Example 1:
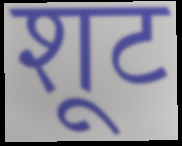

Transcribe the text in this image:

शूट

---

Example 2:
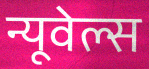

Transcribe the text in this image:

न्यूवेल्स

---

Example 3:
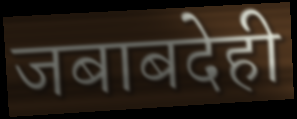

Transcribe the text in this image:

जबाबदेही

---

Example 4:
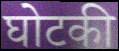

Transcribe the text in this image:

घोटकी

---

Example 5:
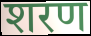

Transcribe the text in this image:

शरण